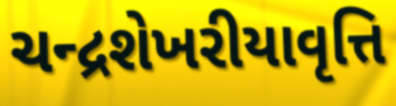
ચન્દ્રશેખરીયાવૃત્તિ